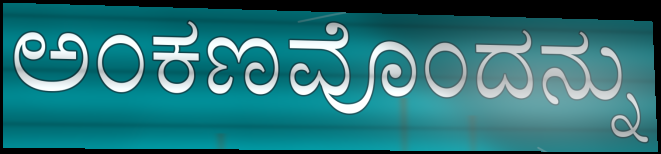
ಅಂಕಣವೊಂದನ್ನು